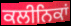
ਕਲੀਨਿਕਾਂ